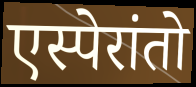
एस्पेरांतो